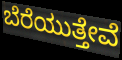
ಬೆರೆಯುತ್ತೇವೆ